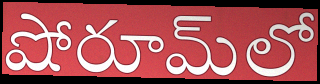
షోరూమ్‌లో